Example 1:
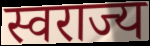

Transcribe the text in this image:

स्वराज्य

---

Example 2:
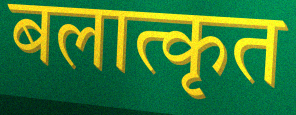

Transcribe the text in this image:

बलात्कृत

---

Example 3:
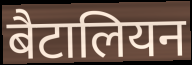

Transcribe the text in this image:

बैटालियन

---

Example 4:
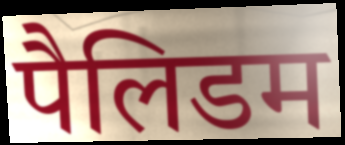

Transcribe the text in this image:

पैलिडम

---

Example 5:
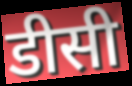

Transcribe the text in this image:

डीसी